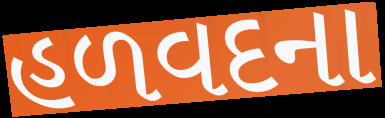
હળવદના